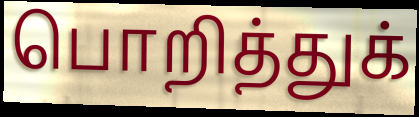
பொறித்துக்